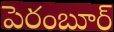
పెరంబూర్